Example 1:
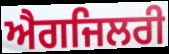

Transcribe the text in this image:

ਐਗਜਿਲਰੀ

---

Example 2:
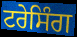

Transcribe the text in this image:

ਟਰੇਸਿੰਗ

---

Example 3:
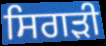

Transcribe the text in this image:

ਸਿਗੜੀ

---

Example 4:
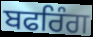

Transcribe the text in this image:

ਬਫਰਿੰਗ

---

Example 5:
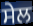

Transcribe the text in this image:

ਸੇਲ